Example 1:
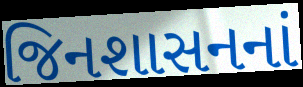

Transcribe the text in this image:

જિનશાસનનાં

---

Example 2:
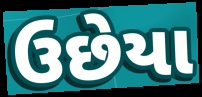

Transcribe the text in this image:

ઉછેયા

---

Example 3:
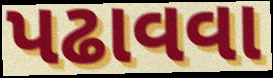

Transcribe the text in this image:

પઢાવવા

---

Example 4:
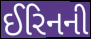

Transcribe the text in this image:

ઈરિનની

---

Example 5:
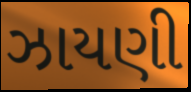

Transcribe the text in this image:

ઝાયણી